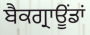
ਬੈਕਗ੍ਰਾਊਂਡਾਂ